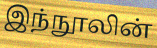
இந்நூலின்